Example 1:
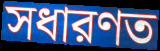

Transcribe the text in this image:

সধারণত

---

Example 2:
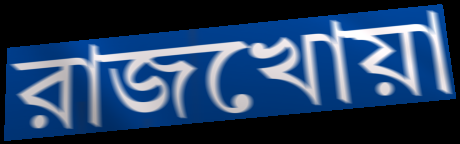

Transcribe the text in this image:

রাজখোয়া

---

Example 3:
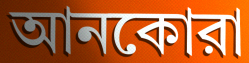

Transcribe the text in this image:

আনকোরা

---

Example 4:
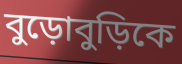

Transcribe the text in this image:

বুড়োবুড়িকে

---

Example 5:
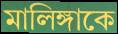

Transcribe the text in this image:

মালিঙ্গাকে